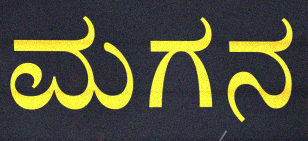
ಮಗನ